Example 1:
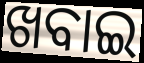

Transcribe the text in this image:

ଖବାଇ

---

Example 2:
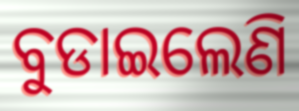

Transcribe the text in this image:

ବୁଡାଇଲେଣି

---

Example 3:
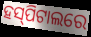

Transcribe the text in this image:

ହସ୍‍ପିଟାଲରେ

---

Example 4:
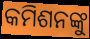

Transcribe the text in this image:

କମିଶନଙ୍କୁ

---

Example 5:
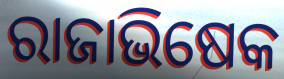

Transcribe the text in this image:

ରାଜାଭିଷେକ